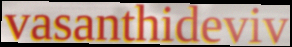
vasanthideviv